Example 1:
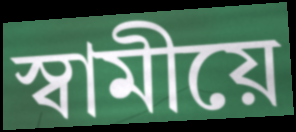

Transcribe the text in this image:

স্বামীয়ে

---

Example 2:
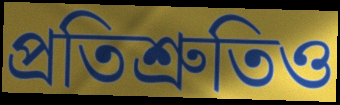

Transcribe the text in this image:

প্ৰতিশ্ৰুতিও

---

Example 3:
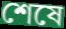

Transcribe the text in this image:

শেষে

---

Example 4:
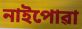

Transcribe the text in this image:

নাইপোৱা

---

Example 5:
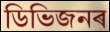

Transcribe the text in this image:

ডিভিজনৰ